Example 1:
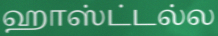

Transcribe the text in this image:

ஹாஸ்ட்டல்ல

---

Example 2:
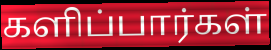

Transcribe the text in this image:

களிப்பார்கள்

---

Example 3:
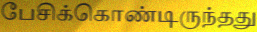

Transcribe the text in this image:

பேசிக்கொண்டிருந்தது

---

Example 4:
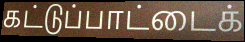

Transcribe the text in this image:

கட்டுப்பாட்டைக்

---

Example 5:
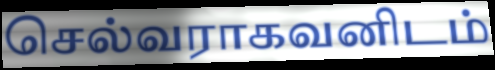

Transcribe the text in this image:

செல்வராகவனிடம்